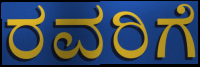
ರವರಿಗೆ